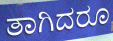
ತಾಗಿದರೂ